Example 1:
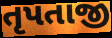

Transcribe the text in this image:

તૃપતાજી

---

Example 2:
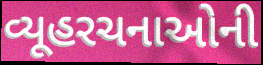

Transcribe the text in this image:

વ્યૂહરચનાઓની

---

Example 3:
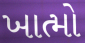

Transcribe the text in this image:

ખાત્મો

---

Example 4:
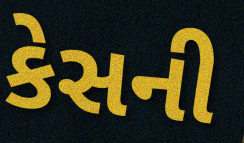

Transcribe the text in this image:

કેસની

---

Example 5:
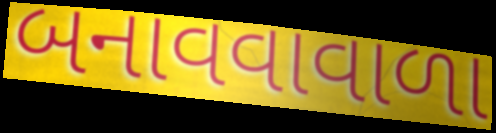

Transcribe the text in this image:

બનાવવાવાળા